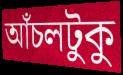
আঁচলটুকু